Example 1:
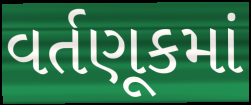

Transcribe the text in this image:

વર્તણૂકમાં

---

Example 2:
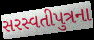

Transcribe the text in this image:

સરસ્વતીપુત્રના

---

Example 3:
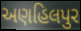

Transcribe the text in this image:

અણહિલપુર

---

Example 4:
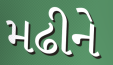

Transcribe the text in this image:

મઢીને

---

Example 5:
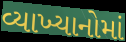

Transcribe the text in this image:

વ્યાખ્યાનોમાં